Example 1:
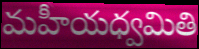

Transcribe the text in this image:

మహీయధ్వమితి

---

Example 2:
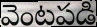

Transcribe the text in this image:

వెంటపడి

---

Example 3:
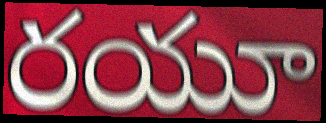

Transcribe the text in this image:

రయూ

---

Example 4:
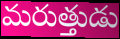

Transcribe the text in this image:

మరుత్తుడు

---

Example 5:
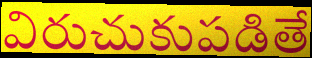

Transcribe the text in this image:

విరుచుకుపడితే